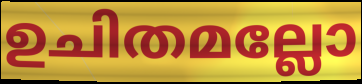
ഉചിതമല്ലോ